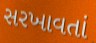
સરખાવતાં